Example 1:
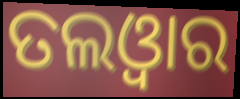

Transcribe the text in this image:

ତଲଓ୍ୱାର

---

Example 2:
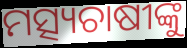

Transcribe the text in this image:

ମତ୍ସ୍ୟଚାଷୀଙ୍କୁ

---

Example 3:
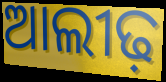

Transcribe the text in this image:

ଆଲୀଢ଼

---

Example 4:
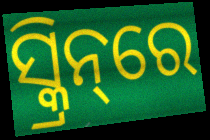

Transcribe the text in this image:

ସ୍କ୍ରିନ୍‌ରେ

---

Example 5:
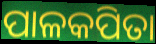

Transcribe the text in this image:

ପାଳକପିତା